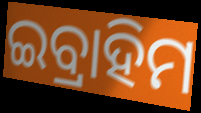
ଇବ୍ରାହିମ